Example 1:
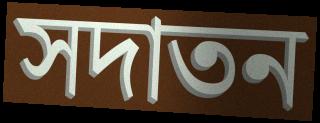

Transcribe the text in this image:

সদাতন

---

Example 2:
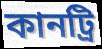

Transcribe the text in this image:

কানট্রি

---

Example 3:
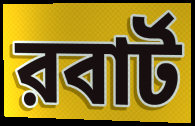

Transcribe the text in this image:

রবার্ট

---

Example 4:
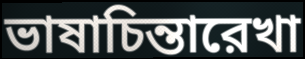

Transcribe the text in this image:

ভাষাচিন্তারেখা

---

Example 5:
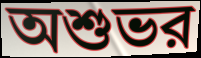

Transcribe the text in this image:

অশুভর